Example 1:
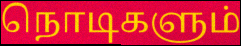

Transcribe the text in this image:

நொடிகளும்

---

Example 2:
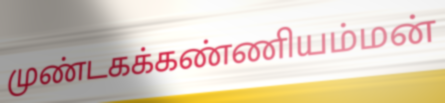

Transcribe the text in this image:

முண்டகக்கண்ணியம்மன்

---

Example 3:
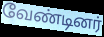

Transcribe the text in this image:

வேண்டினர்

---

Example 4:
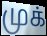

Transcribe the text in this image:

முக்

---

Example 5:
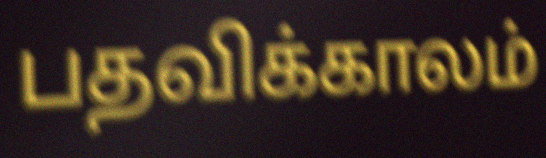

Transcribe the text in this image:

பதவிக்காலம்